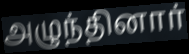
அழுந்தினார்